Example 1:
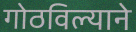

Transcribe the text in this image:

गोठविल्याने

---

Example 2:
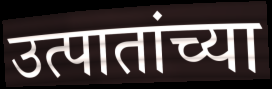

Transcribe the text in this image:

उत्पातांच्या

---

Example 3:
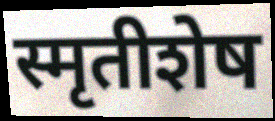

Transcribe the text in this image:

स्मृतीशेष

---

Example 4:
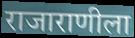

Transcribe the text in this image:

राजाराणीला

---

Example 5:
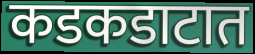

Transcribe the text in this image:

कडकडाटात